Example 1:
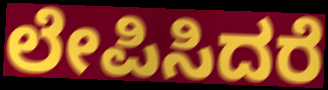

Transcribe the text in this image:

ಲೇಪಿಸಿದರೆ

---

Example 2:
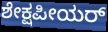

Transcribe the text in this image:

ಶೇಕ್ಷಪೀಯರ್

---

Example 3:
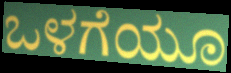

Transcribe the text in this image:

ಒಳಗೆಯೂ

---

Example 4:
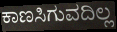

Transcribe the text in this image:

ಕಾಣಸಿಗುವದಿಲ್ಲ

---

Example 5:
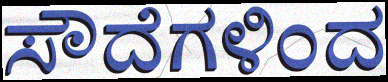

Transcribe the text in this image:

ಸೌದೆಗಳಿಂದ